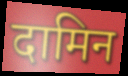
दामिन